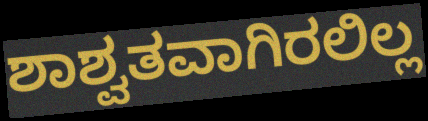
ಶಾಶ್ವತವಾಗಿರಲಿಲ್ಲ